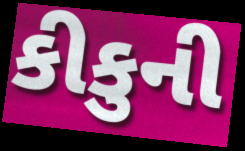
કીકુની